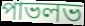
পাভলভ